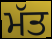
ਮੱਤ